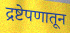
द्रष्टेपणातून